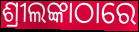
ଶ୍ରୀଲଙ୍କାଠାରେ